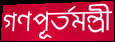
গণপূর্তমন্ত্রী